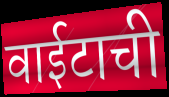
वाईटाची